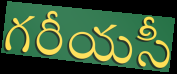
గరీయసీ